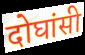
दोघांसी